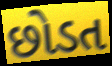
છોડત